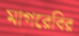
মাগরেবির